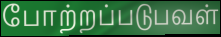
போற்றப்படுபவள்